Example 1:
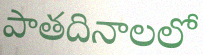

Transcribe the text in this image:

పాతదినాలలో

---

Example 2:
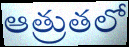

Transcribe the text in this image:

ఆత్రుతలో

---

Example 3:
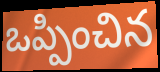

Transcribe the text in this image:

ఒప్పించిన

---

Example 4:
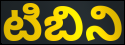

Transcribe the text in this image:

టిబిని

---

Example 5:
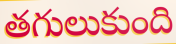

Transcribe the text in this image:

తగులుకుంది